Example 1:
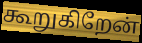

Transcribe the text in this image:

கூறுகிறேன்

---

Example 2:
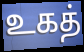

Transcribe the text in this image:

உகத்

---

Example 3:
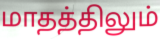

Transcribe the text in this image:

மாதத்திலும்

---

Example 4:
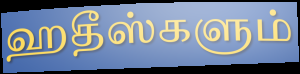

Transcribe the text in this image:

ஹதீஸ்களும்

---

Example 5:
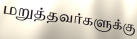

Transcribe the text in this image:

மறுத்தவர்களுக்கு